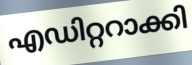
എഡിറ്ററാക്കി